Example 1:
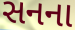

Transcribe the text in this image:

સનના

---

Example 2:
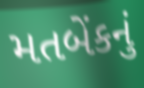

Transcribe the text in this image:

મતબેંકનું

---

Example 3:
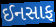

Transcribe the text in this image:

ઈનસાફ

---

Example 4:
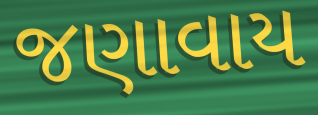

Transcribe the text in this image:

જણાવાય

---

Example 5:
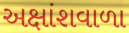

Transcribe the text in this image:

અક્ષાંશવાળા